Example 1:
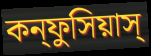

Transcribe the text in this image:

কন্ফুসিয়াস্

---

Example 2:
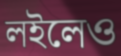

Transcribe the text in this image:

লইলেও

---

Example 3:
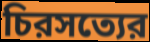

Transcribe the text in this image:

চিরসত্যের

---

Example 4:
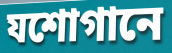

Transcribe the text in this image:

যশোগানে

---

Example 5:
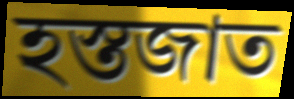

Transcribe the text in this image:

হস্তজাত